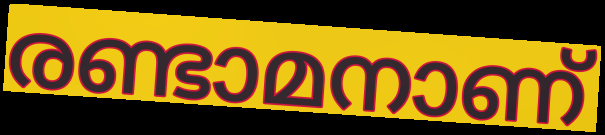
രണ്ടാമനാണ്